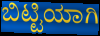
ಬಿಟ್ಟಿಯಾಗಿ